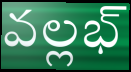
వల్లభ్